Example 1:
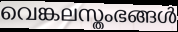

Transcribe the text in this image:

വെങ്കലസ്തംഭങ്ങൾ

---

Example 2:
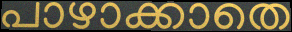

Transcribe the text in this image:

പാഴാക്കാതെ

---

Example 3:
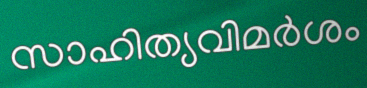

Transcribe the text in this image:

സാഹിത്യവിമർശം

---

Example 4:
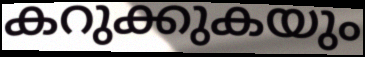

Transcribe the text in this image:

കറുക്കുകയും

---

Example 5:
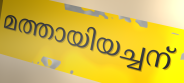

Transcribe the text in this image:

മത്തായിയച്ചന്